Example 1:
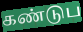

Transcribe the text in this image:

கண்டுப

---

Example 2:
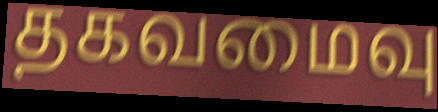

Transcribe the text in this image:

தகவமைவு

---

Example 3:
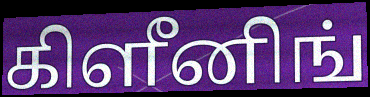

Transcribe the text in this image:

கிளீனிங்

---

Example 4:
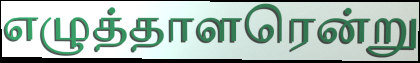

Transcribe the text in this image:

எழுத்தாளரென்று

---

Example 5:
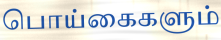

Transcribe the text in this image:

பொய்கைகளும்